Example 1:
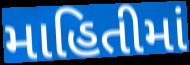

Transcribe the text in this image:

માહિતીમાં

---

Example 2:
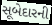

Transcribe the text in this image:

સૂબેદારની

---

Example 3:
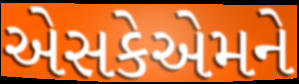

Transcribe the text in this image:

એસકેએમને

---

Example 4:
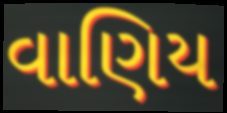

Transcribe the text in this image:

વાણિય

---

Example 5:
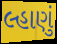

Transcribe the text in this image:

લ્હાણું